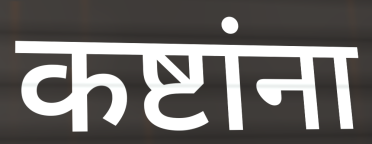
कष्टांना